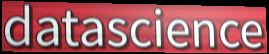
datascience